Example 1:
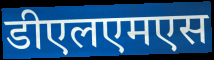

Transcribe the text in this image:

डीएलएमएस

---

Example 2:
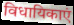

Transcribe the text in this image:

विधायिकाएं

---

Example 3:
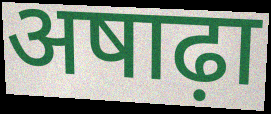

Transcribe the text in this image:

अषाढ़ा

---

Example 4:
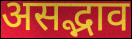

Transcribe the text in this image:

असद्भाव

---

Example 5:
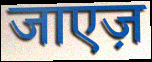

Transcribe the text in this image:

जाएज़